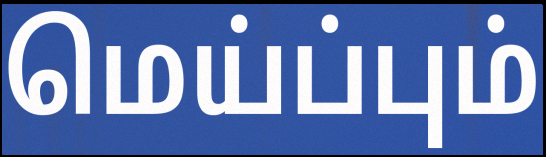
மெய்ப்பும்